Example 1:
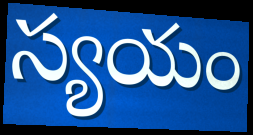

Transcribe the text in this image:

స్యయం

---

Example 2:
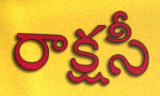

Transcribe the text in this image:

రాక్షసీ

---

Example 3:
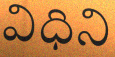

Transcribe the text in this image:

విధిని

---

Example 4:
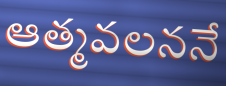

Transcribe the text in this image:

ఆత్మవలననే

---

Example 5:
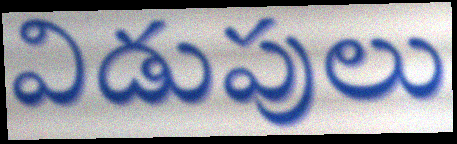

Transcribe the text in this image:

విడుపులు